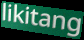
likitang